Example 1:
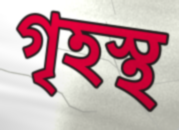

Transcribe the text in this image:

গৃহস্থ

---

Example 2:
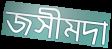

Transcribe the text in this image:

জসীমদা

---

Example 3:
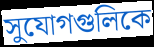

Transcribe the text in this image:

সুযোগগুলিকে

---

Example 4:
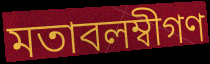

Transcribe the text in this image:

মতাবলম্বীগণ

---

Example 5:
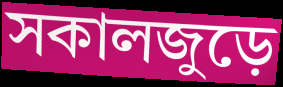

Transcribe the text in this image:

সকালজুড়ে